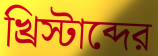
খ্রিস্টাব্দের